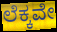
ಲೆಕ್ಕವೇ